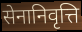
सेनानिवृत्ति